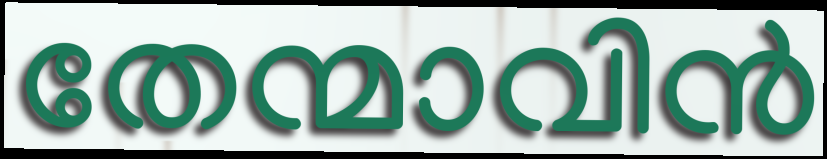
തേന്മാവിൻ